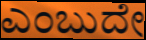
ಎಂಬುದೇ